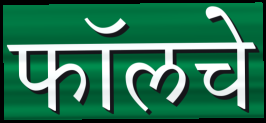
फॉलचे